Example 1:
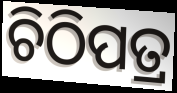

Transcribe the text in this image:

ଚିଠିପତ୍ର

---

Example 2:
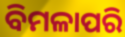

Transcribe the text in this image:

ବିମଳାପରି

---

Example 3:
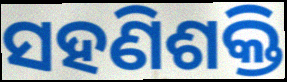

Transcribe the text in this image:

ସହଣିଶକ୍ତି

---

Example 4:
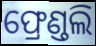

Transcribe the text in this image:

ଫ୍ରେଣ୍ଡଲି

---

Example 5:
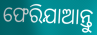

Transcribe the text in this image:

ଫେରିଯାଆନ୍ତୁ